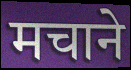
मचाने